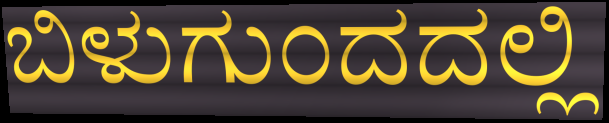
ಬಿಳುಗುಂದದಲ್ಲಿ